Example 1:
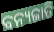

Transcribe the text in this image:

ବନ୍ୟଜାତି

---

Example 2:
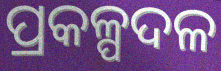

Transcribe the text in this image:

ପ୍ରକଳ୍ପଦଳ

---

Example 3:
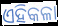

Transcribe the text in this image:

ଏହିକଳା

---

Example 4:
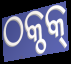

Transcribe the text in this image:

ଠକ୍ଠକ୍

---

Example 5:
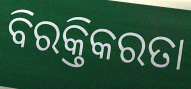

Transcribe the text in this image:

ବିରକ୍ତିକରତା